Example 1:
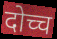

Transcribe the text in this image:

दोच्च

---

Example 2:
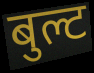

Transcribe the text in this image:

बुल्ट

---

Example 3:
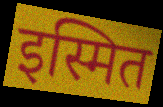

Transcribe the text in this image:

इस्मित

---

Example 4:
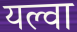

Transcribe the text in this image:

यल्वा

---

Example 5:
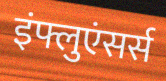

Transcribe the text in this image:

इंफ्लुएंसर्स